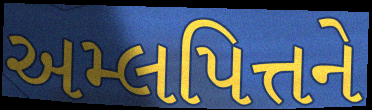
અમ્લપિત્તને